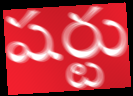
షర్టు